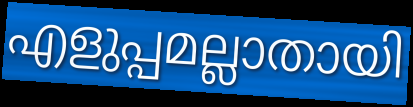
എളുപ്പമല്ലാതായി